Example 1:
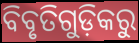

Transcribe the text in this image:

ବିବୃତିଗୁଡ଼ିକରୁ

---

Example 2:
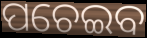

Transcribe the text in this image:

ପଚେଇବ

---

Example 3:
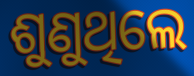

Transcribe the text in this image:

ଶୁଣୁଥିଲେ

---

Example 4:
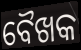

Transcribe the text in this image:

ବୈଖକ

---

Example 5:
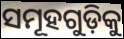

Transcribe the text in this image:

ସମୂହଗୁଡ଼ିକୁ